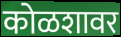
कोळशावर